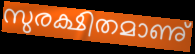
സുരക്ഷിതമാണു്